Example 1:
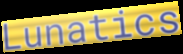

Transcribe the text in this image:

Lunatics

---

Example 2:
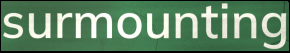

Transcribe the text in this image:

surmounting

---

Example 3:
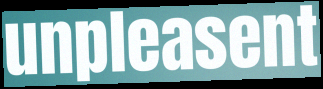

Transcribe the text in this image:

unpleasent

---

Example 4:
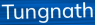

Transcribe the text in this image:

Tungnath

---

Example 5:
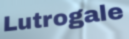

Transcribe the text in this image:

Lutrogale